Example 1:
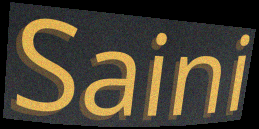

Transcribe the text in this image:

Saini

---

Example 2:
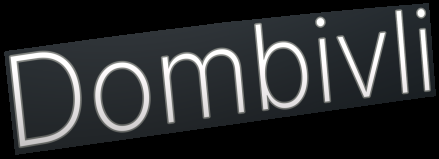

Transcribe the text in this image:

Dombivli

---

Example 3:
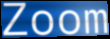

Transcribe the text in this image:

Zoom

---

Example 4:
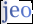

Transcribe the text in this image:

jeo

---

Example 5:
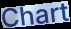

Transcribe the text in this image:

Chart